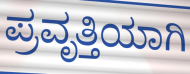
ಪ್ರವೃತ್ತಿಯಾಗಿ